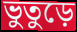
ভুতুড়ে